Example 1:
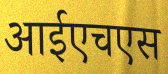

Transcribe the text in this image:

आईएचएस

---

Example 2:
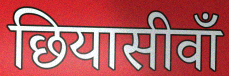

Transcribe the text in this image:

छियासीवाँ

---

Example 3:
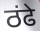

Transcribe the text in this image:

ठंढे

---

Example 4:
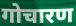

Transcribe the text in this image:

गोचारण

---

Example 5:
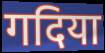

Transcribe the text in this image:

गदिया